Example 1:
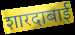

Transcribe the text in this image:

शारदाबाई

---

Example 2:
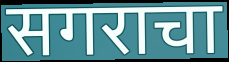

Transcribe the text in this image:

सगराचा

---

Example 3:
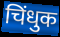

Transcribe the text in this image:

चिंधुक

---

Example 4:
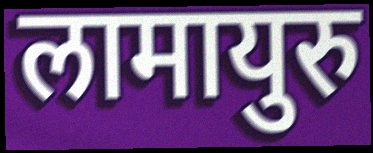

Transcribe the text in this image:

लामायुरु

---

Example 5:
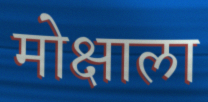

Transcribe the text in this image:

मोक्षाला